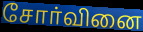
சோர்வினை